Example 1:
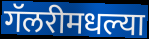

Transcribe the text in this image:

गॅलरीमधल्या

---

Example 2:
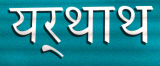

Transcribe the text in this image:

यर्थाथ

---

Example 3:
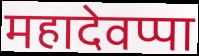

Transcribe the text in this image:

महादेवप्पा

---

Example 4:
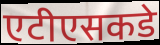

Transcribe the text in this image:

एटीएसकडे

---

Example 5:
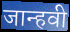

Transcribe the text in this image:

जान्हवी